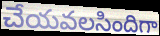
చేయవలసిందిగా